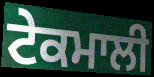
ਟੇਕਮਾਲੀ